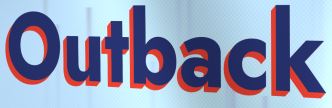
Outback